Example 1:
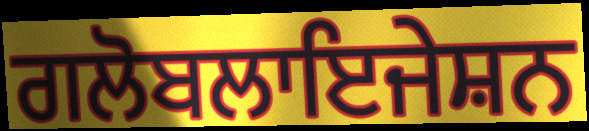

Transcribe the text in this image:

ਗਲੋਬਲਾਇਜੇਸ਼ਨ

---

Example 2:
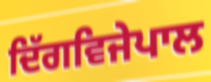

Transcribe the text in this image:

ਦਿੱਗਵਿਜੇਪਾਲ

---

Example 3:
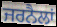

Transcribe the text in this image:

ਜਰਨੈਲਾਂ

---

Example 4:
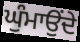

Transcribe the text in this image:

ਘੁੰਮਾਉਂਦੇ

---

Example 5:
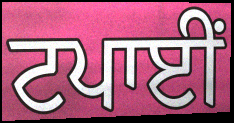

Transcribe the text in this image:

ਟਪਾਈਂ